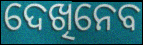
ଦେଖିନେବ